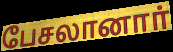
பேசலானார்